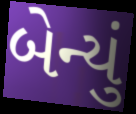
બેન્યું